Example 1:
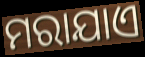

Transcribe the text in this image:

ମରାଯାଏ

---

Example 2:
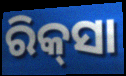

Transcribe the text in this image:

ରିକ୍‌ସା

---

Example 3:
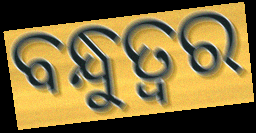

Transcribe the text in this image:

ବନ୍ଧୁତ୍ବର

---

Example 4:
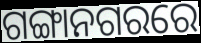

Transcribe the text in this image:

ଗଙ୍ଗାନଗରରେ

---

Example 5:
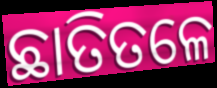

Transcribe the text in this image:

ଛାତିତଳେ